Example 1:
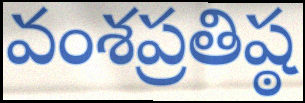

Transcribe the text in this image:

వంశప్రతిష్ఠ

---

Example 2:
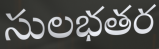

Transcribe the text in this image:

సులభతర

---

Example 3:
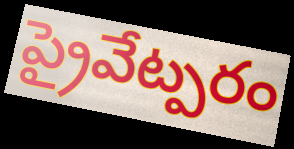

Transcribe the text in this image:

ప్రైవేట్పరం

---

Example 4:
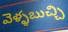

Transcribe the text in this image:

వెళ్ళబుచ్చి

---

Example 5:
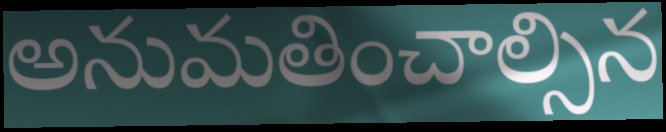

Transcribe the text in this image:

అనుమతించాల్సిన